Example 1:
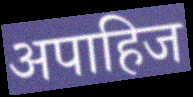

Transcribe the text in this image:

अपाहिज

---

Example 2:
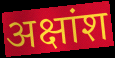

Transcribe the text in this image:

अक्षांश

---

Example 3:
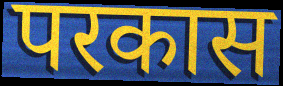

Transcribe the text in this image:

परकास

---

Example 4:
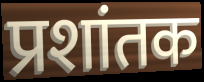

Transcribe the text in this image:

प्रशांतक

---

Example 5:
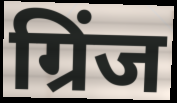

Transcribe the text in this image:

ग्रिंज